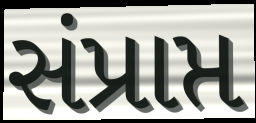
સંપ્રાપ્ત